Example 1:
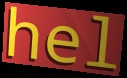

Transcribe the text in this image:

hel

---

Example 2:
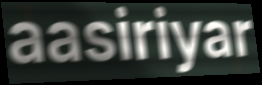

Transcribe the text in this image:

aasiriyar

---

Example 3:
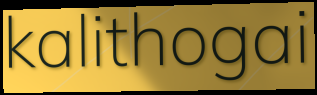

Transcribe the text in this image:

kalithogai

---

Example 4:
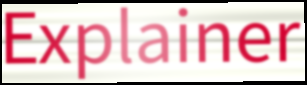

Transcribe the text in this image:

Explainer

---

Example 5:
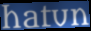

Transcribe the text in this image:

hatun